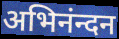
अभिनंन्दन